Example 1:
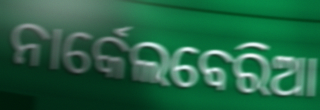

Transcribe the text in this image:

ନାର୍କେଲବେରିଆ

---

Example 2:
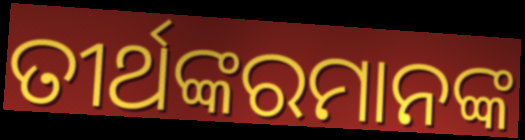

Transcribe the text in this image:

ତୀର୍ଥଙ୍କରମାନଙ୍କ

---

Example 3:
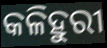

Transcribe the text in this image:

କଳିହୁରୀ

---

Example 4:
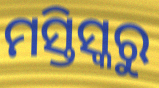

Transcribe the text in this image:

ମସ୍ତିସ୍କରୁ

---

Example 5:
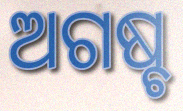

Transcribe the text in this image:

ଅଗଷ୍ଚ